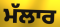
ਮੱਲਾਰ